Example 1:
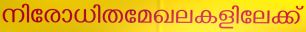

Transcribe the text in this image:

നിരോധിതമേഖലകളിലേക്ക്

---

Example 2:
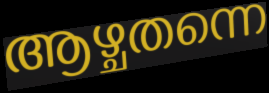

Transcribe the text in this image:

ആഴ്ചതന്നെ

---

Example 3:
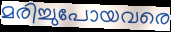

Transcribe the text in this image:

മരിച്ചുപോയവരെ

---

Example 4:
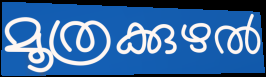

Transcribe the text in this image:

മൂത്രക്കുഴൽ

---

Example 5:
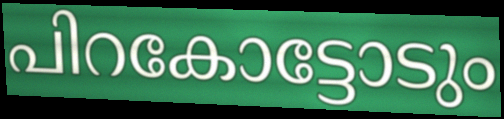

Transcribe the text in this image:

പിറകോട്ടോടും